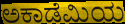
ಅಕಾಡೆಮಿಯ